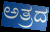
ಅತ್ರದ